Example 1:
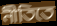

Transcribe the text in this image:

নীতিতে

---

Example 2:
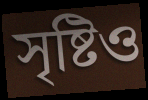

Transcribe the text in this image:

সৃষ্টিও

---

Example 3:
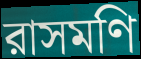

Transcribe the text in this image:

রাসমণি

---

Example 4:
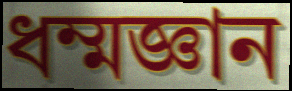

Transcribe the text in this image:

ধম্মজ্ঞান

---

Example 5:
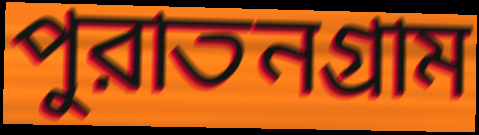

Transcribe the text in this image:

পুরাতনগ্রাম